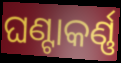
ଘଣ୍ଟାକର୍ଣ୍ଣ